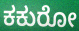
ಕಕುರೋ